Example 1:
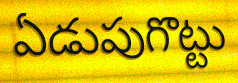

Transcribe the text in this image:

ఏడుపుగొట్టు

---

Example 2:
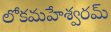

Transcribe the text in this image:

లోకమహేశ్వరమ్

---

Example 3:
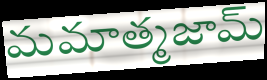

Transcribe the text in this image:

మమాత్మజామ్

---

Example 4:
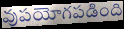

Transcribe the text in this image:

వుపయోగపడింది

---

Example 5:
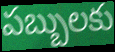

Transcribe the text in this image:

పబ్బులకు